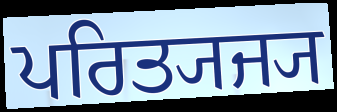
ਪਰਿਤ੍ਯਜ੍ਯ